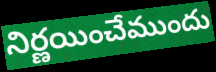
నిర్ణయించేముందు